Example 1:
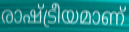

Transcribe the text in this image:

രാഷ്ട്രീയമാണ്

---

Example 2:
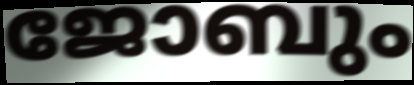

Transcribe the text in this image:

ജോബും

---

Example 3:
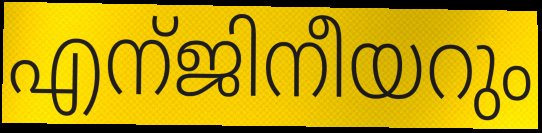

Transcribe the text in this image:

എന്ജിനീയറും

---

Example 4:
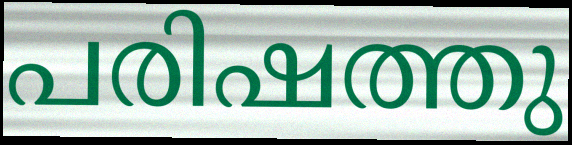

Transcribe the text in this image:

പരിഷത്തു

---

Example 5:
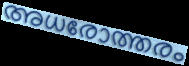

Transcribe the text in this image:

അധരോത്തരം